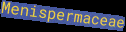
Menispermaceae